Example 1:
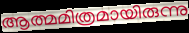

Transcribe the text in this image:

ആത്മമിത്രമായിരുന്നു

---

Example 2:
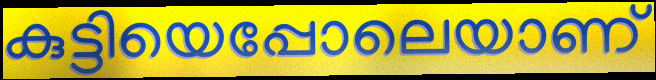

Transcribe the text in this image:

കുട്ടിയെപ്പോലെയാണ്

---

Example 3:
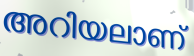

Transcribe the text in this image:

അറിയലാണ്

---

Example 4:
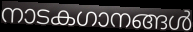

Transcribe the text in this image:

നാടകഗാനങ്ങൾ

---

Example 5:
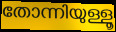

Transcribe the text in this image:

തോന്നിയുള്ളൂ